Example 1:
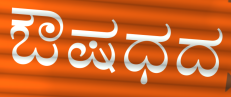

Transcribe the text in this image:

ಔಷಧದ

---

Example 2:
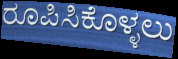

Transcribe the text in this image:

ರೂಪಿಸಿಕೊಳ್ಳಲು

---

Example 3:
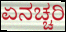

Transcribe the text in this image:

ಏನಚ್ಚರಿ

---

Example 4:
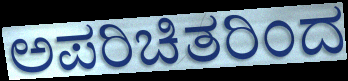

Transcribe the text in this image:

ಅಪರಿಚಿತರಿಂದ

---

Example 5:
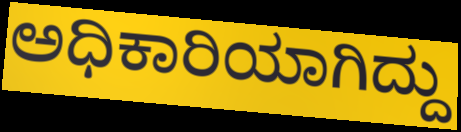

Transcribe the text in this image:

ಅಧಿಕಾರಿಯಾಗಿದ್ದು